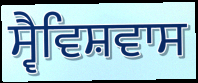
ਸ੍ਵੈਵਿਸ਼ਵਾਸ